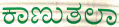
ಕಾಣುತಲಾ